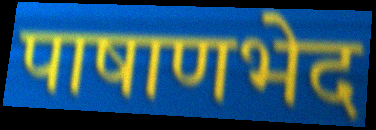
पाषाणभेद